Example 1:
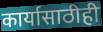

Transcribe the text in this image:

कार्यासाठीही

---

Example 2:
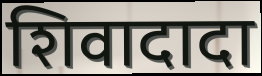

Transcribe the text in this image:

शिवादादा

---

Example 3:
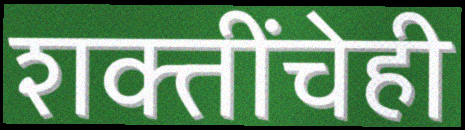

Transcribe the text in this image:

शक्तींचेही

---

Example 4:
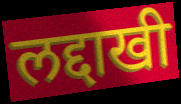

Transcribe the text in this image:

लद्दाखी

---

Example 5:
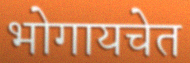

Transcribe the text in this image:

भोगायचेत